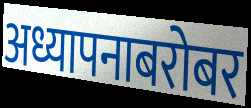
अध्यापनाबरोबर